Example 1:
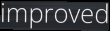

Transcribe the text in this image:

improved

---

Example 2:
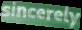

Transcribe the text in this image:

sincerely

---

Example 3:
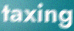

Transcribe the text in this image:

taxing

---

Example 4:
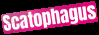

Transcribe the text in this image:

Scatophagus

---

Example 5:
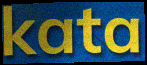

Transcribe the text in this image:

kata